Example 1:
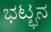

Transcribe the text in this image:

ಭಟ್ಟನ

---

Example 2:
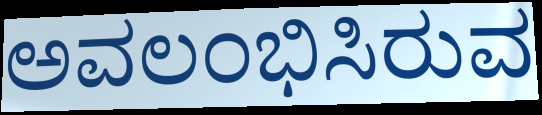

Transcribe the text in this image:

ಅವಲಂಭಿಸಿರುವ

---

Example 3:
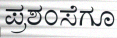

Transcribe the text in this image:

ಪ್ರಶಂಸೆಗೂ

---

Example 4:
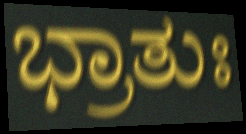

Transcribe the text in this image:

ಭ್ರಾತುಃ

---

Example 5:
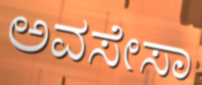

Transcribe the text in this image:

ಅವಸೇಸಾ